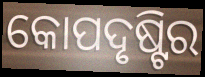
କୋପଦୃଷ୍ଟିର